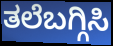
ತಲೆಬಗ್ಗಿಸಿ